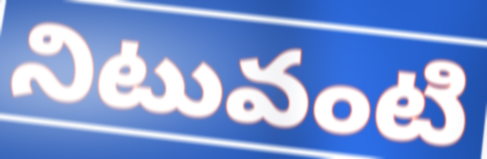
నిటువంటి